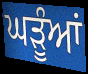
ਘੜੂੰਆਂ